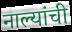
नाल्यांची